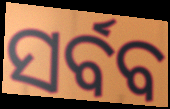
ସର୍ବବ